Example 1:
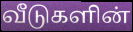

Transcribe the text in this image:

வீடுகளின்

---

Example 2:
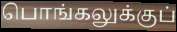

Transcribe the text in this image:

பொங்கலுக்குப்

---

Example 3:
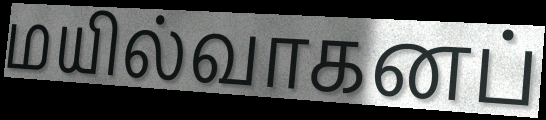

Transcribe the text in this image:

மயில்வாகனப்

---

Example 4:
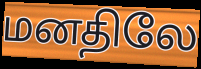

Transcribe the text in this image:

மனதிலே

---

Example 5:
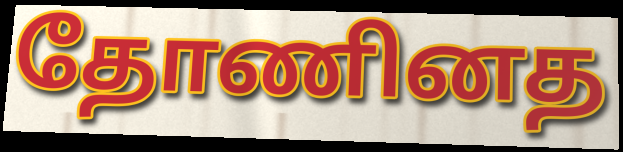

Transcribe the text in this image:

தோணினத